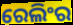
ରେଲିଂର